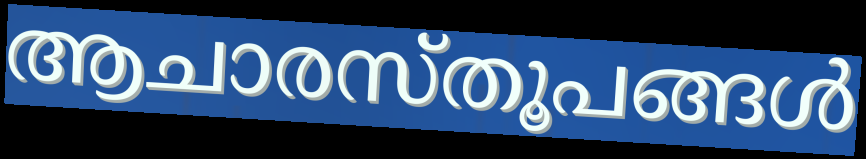
ആചാരസ്തൂപങ്ങൾ